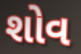
શોવ